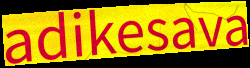
adikesava